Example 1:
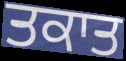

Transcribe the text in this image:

ਤਕਾਤ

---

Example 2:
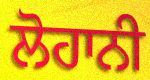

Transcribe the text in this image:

ਲੋਹਾਨੀ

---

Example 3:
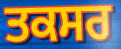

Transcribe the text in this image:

ਤਕਸਰ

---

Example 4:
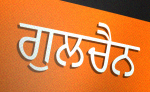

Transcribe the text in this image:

ਗੁਲਚੈਨ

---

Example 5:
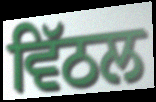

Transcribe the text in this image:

ਵਿੱਠਲ